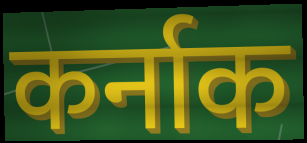
कर्नाक